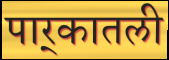
पार्कातली